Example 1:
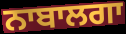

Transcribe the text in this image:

ਨਾਬਾਲਗਾ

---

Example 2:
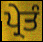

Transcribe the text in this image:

ਪ੍ਰੇਤੰ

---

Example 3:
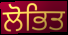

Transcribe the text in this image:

ਲੋਭਿਤ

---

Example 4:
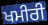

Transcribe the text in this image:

ਖਮੀਰੀ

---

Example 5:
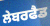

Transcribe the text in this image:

ਲੇਬਰਫੈਡ